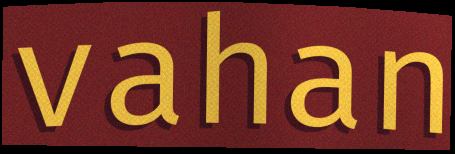
vahan